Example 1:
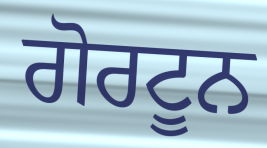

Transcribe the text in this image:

ਗੋਰਟੂਨ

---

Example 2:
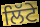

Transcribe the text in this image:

ਲਿੱਟੇ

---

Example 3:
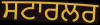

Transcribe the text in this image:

ਸਟਾਰਲਰ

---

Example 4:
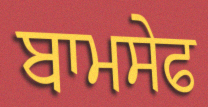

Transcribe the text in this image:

ਬਾਮਸੇਫ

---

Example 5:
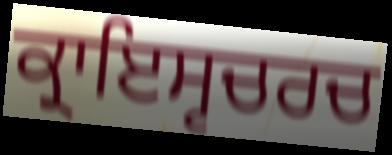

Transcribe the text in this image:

ਕ੍ਰਾਇਸ੍ਟਚਰਚ